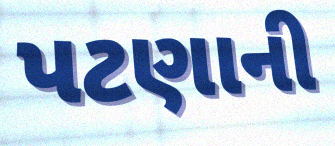
પટણાની